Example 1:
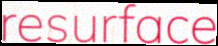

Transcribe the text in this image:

resurface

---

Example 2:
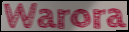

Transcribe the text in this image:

Warora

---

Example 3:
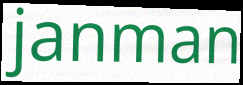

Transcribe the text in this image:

janman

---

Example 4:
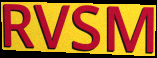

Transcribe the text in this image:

RVSM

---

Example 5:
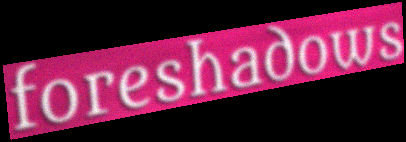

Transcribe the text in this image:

foreshadows